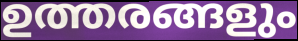
ഉത്തരങ്ങളും